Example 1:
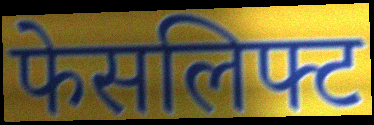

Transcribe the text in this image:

फेसलिफ्ट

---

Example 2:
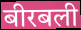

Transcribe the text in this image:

बीरबली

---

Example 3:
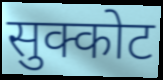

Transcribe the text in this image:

सुक्कोट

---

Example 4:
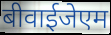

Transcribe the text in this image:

बीवाईजेएम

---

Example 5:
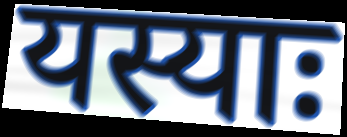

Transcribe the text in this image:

यस्याः